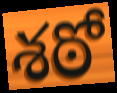
శఠో